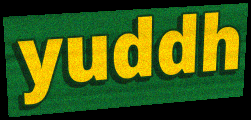
yuddh